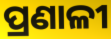
ପ୍ରଣାଳୀ